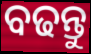
ବଢନ୍ତୁ